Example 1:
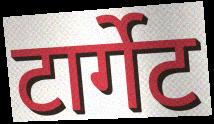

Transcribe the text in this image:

टार्गेट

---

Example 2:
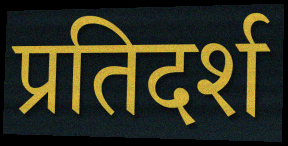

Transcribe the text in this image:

प्रतिदर्श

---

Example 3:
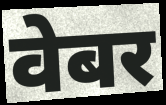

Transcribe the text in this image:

वेबर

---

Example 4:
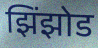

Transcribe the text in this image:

झिंझोड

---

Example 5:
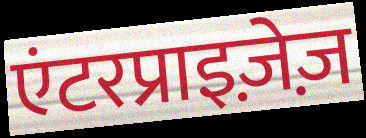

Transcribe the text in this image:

एंटरप्राइज़ेज़